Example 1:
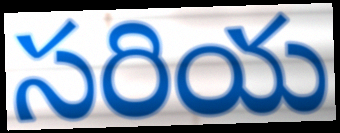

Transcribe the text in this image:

సరియ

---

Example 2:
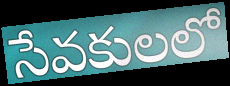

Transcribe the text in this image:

సేవకులలో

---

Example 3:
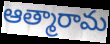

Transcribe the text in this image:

ఆత్మారామ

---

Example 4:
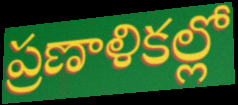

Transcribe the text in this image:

ప్రణాళికల్లో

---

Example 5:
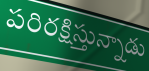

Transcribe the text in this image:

పరిరక్షిస్తున్నాడు